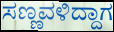
ಸಣ್ಣವಳಿದ್ದಾಗ